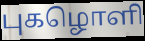
புகழொளி